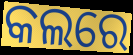
କଲରେ